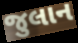
જુલાન